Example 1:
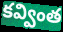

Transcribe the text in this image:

కవ్వింత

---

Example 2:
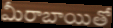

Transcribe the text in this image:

మీరాబాయితో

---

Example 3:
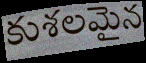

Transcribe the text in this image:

కుశలమైన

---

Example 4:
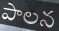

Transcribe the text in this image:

పాలన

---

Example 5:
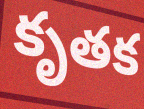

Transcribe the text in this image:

కృతక